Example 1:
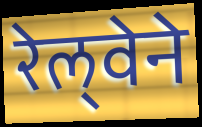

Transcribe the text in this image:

रेल्वेने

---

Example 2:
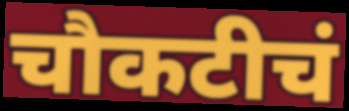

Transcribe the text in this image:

चौकटीचं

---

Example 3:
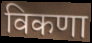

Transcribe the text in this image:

विकणा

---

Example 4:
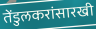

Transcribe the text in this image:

तेंडुलकरांसारखी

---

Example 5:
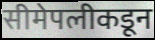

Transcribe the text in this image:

सीमेपलीकडून